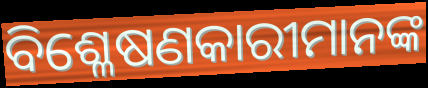
ବିଶ୍ଳେଷଣକାରୀମାନଙ୍କ